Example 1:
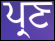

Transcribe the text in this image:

ਪ੍ਰਣ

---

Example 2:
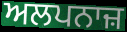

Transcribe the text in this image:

ਅਲਪਨਾਜ਼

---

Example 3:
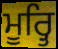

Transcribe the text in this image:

ਮੂਰ੍ਤਿ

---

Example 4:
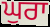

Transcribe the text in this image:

ਘੁਰਾ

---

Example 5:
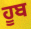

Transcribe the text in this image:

ਹੂਬ